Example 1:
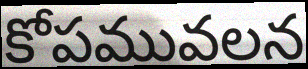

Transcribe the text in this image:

కోపమువలన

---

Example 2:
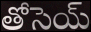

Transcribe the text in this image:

తోసెయ్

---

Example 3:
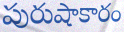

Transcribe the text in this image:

పురుషాకారం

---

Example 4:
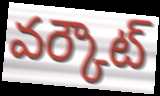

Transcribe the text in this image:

వర్కౌట్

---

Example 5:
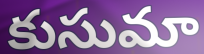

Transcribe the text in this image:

కుసుమా